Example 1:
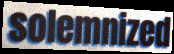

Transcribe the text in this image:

solemnized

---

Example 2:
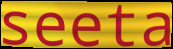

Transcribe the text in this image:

seeta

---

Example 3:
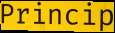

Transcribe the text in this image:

Princip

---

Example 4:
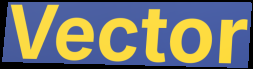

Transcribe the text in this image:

Vector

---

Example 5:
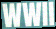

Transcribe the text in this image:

WWII